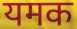
यमक